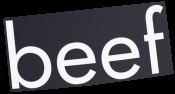
beef